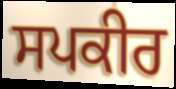
ਸਪਕੀਰ